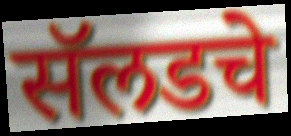
सॅलडचे